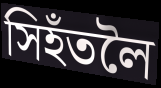
সিহঁতলৈ